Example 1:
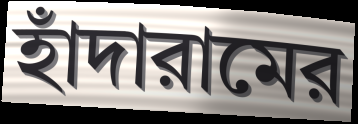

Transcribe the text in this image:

হাঁদারামের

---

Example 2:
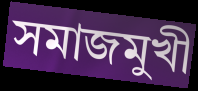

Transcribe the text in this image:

সমাজমুখী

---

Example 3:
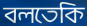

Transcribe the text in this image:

বলতেকি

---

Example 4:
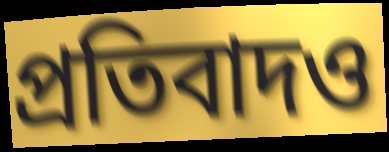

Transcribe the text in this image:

প্রতিবাদও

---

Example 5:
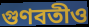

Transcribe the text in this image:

গুণবতীও